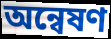
অন্বেষণ